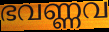
ഭവണ്ണവ